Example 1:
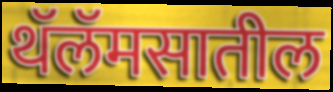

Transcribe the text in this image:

थॅलॅमसातील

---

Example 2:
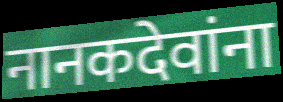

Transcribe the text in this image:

नानकदेवांना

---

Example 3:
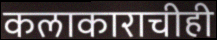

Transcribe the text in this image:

कलाकाराचीही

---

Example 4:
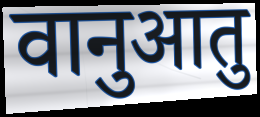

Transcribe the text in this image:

वानुआतु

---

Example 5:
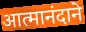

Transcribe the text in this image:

आत्मानंदाने